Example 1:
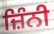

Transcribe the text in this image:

ਜ਼ਿੰਨੀ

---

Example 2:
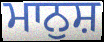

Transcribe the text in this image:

ਮਾਨੁਸ਼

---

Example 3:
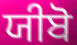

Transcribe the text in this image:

ਯੀਬੋ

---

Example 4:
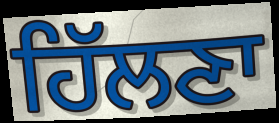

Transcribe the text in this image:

ਹਿੱਲਣਾ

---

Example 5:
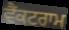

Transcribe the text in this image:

ਵੈਂਕਟਰਾਮ